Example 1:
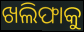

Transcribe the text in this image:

ଖଲିଫାକୁ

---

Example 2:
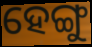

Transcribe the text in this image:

ହେଙ୍ଗୁ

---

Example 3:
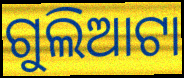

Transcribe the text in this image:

ଗୁଲିଆଟା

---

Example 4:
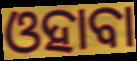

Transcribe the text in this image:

ଓହାବା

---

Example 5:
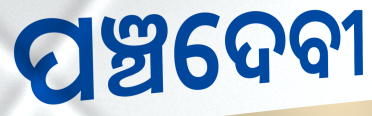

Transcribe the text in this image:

ପଞ୍ଚଦେବୀ